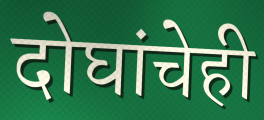
दोघांचेही